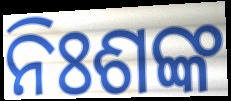
ନିଃଶଙ୍କ